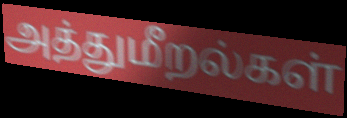
அத்துமீறல்கள்